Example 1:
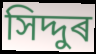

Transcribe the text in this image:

সিদ্দুৰ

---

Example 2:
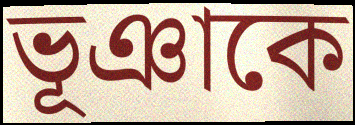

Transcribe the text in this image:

ভূঞাকে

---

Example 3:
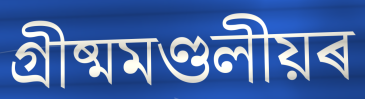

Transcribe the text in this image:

গ্ৰীষ্মমণ্ডলীয়ৰ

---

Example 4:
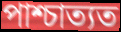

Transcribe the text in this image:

পাশ্চাত্যত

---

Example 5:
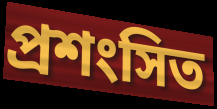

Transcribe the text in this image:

প্ৰশংসিত